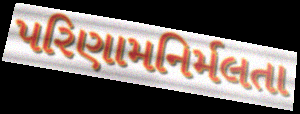
પરિણામનિર્મલતા